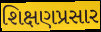
શિક્ષણપ્રસાર